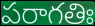
పరాగతిః